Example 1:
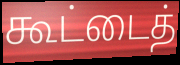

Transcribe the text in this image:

கூட்டைத்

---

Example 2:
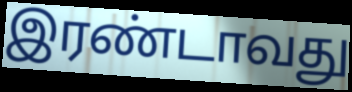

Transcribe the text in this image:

இரண்டாவது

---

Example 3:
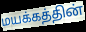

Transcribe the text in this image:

மயக்கத்தின்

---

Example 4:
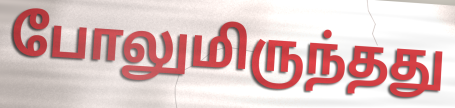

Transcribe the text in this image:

போலுமிருந்தது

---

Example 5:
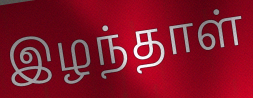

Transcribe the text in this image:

இழந்தாள்